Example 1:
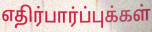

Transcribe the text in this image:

எதிர்பார்ப்புக்கள்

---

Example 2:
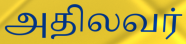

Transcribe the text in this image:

அதிலவர்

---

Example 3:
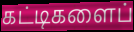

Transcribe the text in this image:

கட்டிகளைப்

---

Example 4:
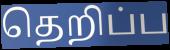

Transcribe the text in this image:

தெறிப்ப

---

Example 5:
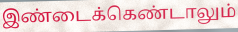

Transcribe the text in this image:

இண்டைக்கெண்டாலும்